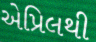
એપ્રિલથી